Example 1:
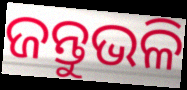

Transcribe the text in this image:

ଜନ୍ତୁଭଳି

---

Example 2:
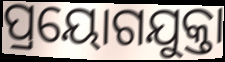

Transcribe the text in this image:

ପ୍ରୟୋଗଯୁକ୍ତା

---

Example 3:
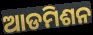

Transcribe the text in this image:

ଆଡମିଶନ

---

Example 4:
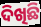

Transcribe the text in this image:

ଦିଖିଛି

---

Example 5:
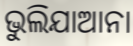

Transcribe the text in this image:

ଭୁଲିଯାଆନା